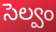
సెల్వం